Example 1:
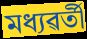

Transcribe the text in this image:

মধ্যৱৰ্তী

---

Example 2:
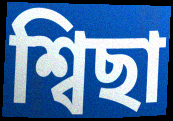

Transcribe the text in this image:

শ্বিছা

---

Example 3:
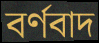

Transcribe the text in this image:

বৰ্ণবাদ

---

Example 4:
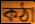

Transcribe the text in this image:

কঠা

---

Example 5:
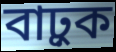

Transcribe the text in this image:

বাঢ়ুক